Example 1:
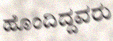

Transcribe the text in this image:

ಹೊಂದಿದ್ದವರು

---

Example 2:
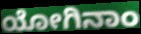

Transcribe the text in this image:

ಯೋಗಿನಾಂ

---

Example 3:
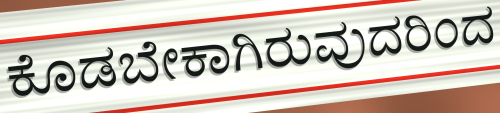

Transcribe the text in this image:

ಕೊಡಬೇಕಾಗಿರುವುದರಿಂದ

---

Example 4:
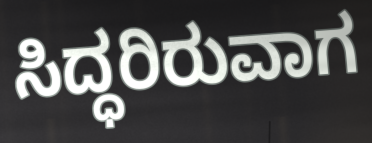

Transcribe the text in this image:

ಸಿದ್ಧರಿರುವಾಗ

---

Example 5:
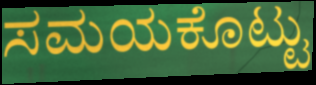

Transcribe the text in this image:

ಸಮಯಕೊಟ್ಟು